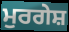
ਮੁਰਗੇਸ਼